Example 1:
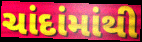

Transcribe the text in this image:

ચાંદાંમાંથી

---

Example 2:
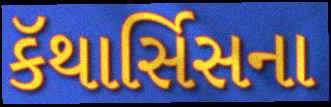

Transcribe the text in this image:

કૅથાર્સિસના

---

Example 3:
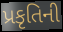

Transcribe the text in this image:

પ્રકૃતિની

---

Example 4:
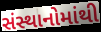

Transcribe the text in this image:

સંસ્થાનોમાંથી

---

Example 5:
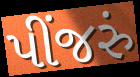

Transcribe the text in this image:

પીંજરું